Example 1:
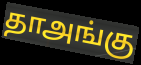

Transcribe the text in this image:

தாஅங்கு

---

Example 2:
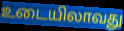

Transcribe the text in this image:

உடையிலாவது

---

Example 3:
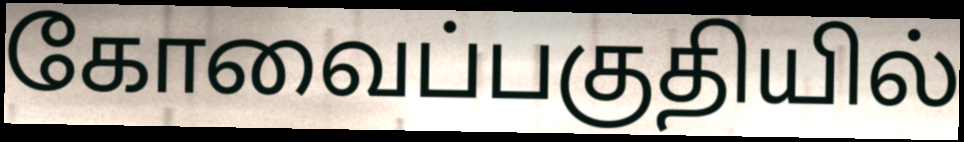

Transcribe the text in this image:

கோவைப்பகுதியில்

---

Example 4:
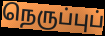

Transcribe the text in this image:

நெருப்புப்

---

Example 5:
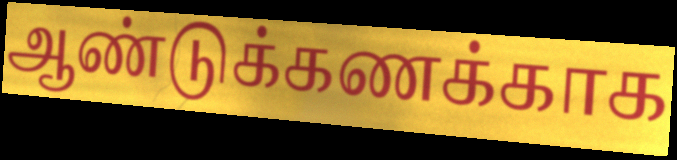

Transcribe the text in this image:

ஆண்டுக்கணக்காக